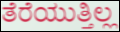
ತೆರೆಯುತ್ತಿಲ್ಲ